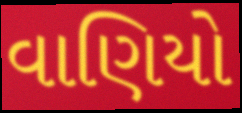
વાણિયો